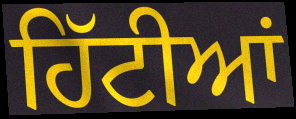
ਹਿੱਟੀਆਂ